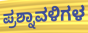
ಪ್ರಶ್ನಾವಳಿಗಳ